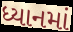
ધ્યાનમાં